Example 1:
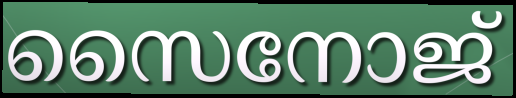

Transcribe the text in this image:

സൈനോജ്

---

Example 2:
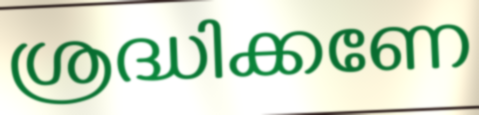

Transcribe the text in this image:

ശ്രദ്ധിക്കണേ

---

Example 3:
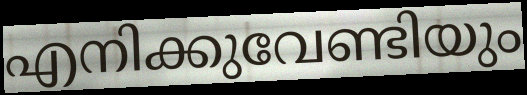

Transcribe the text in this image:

എനിക്കുവേണ്ടിയും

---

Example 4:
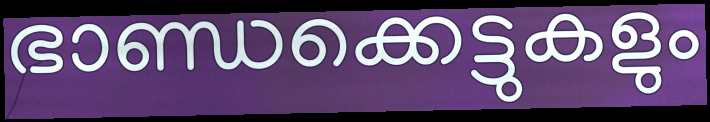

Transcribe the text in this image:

ഭാണ്ഡക്കെട്ടുകളും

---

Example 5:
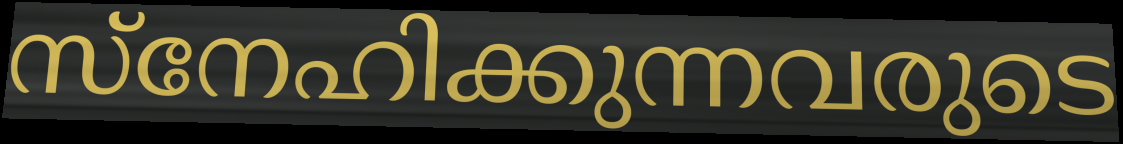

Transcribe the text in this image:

സ്നേഹിക്കുന്നവരുടെ